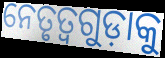
ନେତୃତ୍ୱଗୁଡ଼ାକୁ